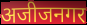
अजीजनगर